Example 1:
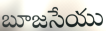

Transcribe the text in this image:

బూజసేయు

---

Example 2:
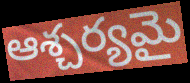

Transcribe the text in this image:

ఆశ్చర్యమై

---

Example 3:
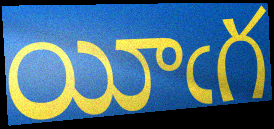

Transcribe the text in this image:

యీఁగ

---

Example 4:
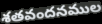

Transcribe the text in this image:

శతవందనముల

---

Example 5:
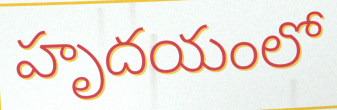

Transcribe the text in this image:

హృదయంలో